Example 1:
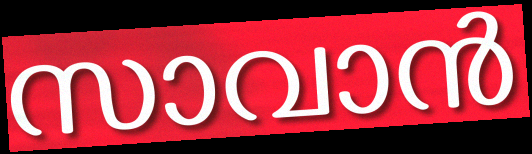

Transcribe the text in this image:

സാവാൻ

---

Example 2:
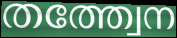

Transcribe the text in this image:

തത്ത്വേന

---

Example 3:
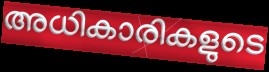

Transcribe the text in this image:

അധികാരികളുടെ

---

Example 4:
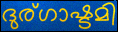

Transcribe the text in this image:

ദുര്ഗാഷ്ടമി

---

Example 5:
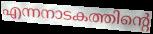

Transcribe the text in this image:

എന്നനാടകത്തിന്റെ